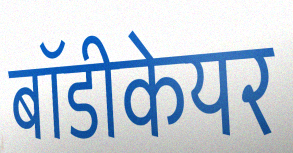
बॉडीकेयर